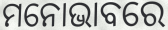
ମନୋଭାବରେ